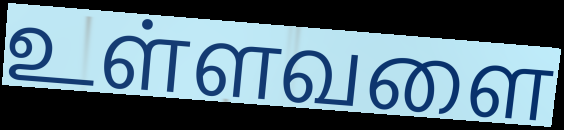
உள்ளவளை